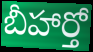
బీహార్తో